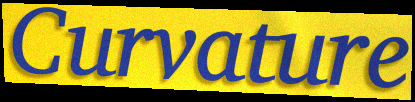
Curvature